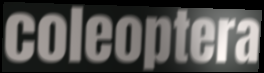
coleoptera